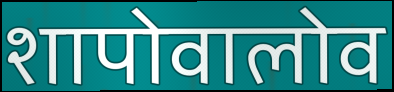
शापोवालोव